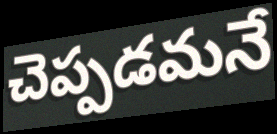
చెప్పడమనే